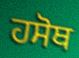
ਹਸੋਥ